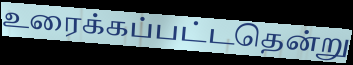
உரைக்கப்பட்டதென்று